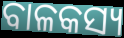
ବାଳକସ୍ୟ